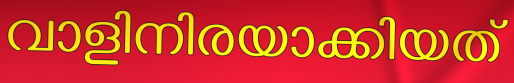
വാളിനിരയാക്കിയത്